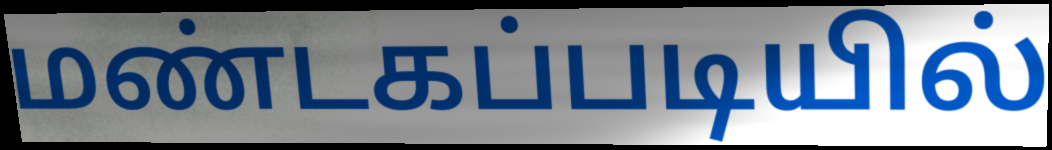
மண்டகப்படியில்